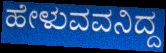
ಹೇಳುವವನಿದ್ದ